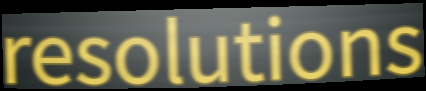
resolutions